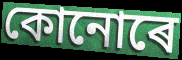
কোনোৰে